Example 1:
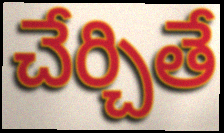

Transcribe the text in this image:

చేర్చితే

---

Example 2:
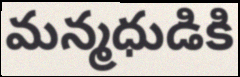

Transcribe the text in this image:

మన్మధుడికి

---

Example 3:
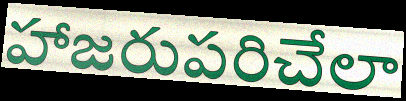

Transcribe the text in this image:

హాజరుపరిచేలా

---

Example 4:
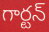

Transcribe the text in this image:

గార్టన్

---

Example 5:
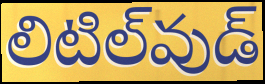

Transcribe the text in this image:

లిటిల్‌వుడ్